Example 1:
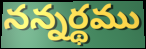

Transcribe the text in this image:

నన్నర్థము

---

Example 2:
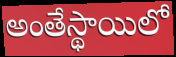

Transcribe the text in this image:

అంతేస్థాయిలో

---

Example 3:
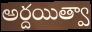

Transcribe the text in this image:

అర్దయిత్వా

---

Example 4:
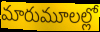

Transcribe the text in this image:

మారుమూలల్లో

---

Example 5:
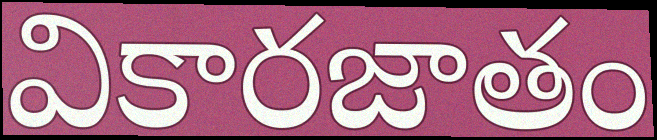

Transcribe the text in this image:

వికారజాతం